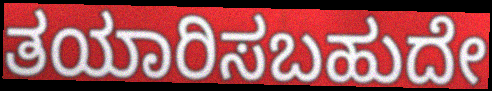
ತಯಾರಿಸಬಹುದೇ